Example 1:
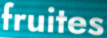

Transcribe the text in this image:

fruites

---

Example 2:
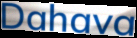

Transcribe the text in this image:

Dahava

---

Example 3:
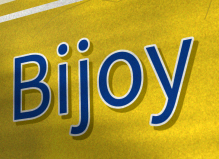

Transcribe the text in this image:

Bijoy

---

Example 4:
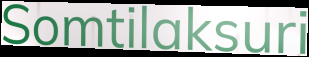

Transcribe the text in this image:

Somtilaksuri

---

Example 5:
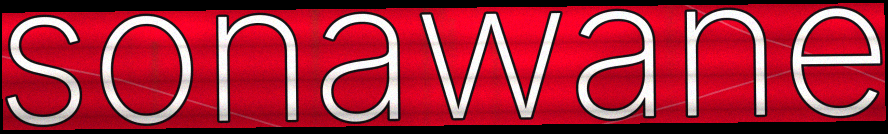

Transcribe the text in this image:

sonawane